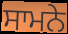
ਸਾਮਨੇ